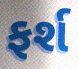
ફર્શ